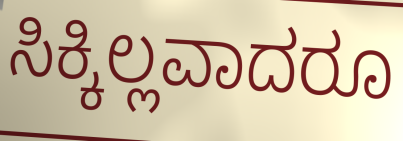
ಸಿಕ್ಕಿಲ್ಲವಾದರೂ